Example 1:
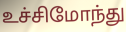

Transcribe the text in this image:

உச்சிமோந்து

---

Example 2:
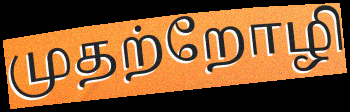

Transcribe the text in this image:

முதற்றோழி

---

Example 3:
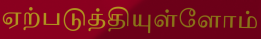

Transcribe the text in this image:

ஏற்படுத்தியுள்ளோம்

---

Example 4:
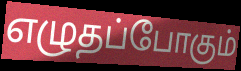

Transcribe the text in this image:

எழுதப்போகும்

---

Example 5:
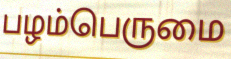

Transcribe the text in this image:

பழம்பெருமை